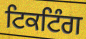
ਟਿਕਟਿੰਗ